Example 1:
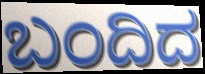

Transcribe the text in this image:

ಬಂದಿದ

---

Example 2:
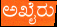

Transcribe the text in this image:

ಅಖೈರು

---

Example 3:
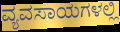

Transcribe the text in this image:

ವ್ಯವಸಾಯಗಳಲ್ಲಿ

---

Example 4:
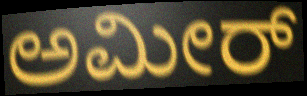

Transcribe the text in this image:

ಅಮೀರ್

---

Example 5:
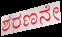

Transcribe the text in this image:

ಶರಣನೇ